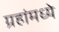
ग्रहांमध्ये